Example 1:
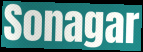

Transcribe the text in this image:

Sonagar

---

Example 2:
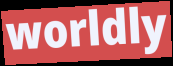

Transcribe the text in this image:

worldly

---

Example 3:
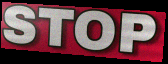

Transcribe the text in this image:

STOP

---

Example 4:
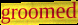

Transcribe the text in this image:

groomed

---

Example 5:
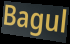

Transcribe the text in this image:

Bagul